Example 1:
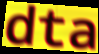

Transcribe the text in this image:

dta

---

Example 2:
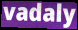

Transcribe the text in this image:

vadaly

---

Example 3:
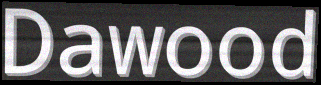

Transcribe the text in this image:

Dawood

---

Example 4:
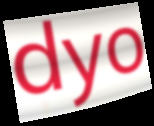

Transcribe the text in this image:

dyo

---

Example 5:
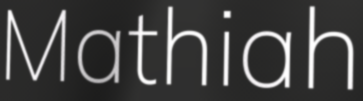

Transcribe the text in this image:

Mathiah